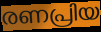
രണപ്രിയ